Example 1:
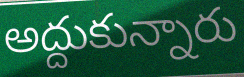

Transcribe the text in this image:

అద్దుకున్నారు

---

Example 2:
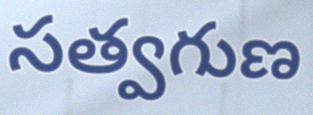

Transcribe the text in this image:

సత్వగుణ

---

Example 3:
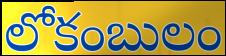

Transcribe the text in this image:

లోకంబులం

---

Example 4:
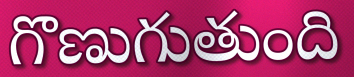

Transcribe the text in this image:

గొణుగుతుంది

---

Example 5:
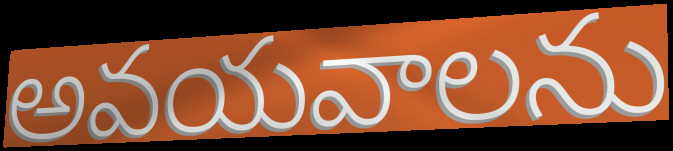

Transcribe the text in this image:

అవయవాలను